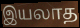
இயலாத